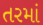
તરમાં